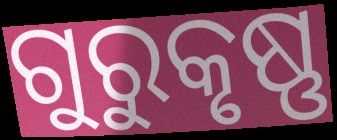
ଗୁରୁକୃଷ୍ଣ